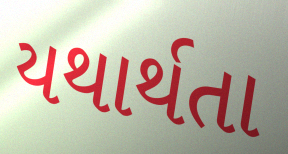
યથાર્થતા